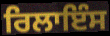
ਰਿਲਾਇੰਸ